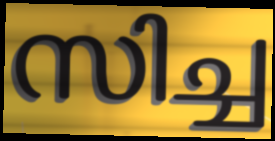
സിച്ച